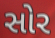
સોર